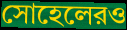
সোহেলেরও